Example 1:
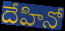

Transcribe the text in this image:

దేహినో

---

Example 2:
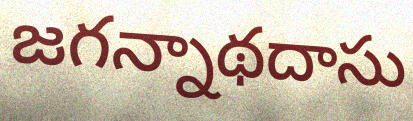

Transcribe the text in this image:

జగన్నాథదాసు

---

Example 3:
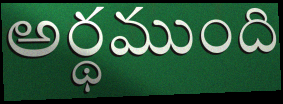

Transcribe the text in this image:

అర్థముంది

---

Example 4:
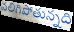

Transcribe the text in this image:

నలిగిపోతున్నది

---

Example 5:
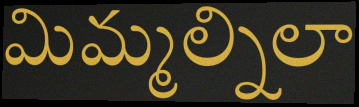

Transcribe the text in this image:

మిమ్మల్నిలా